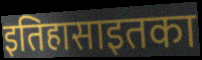
इतिहासाइतका